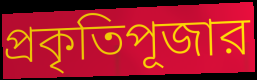
প্রকৃতিপূজার